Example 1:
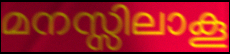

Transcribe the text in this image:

മനസ്സിലാകൂ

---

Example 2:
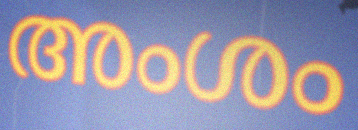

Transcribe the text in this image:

അംശം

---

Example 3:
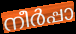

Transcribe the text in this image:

നീർപ്പാ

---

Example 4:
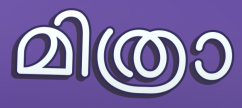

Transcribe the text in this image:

മിത്രാ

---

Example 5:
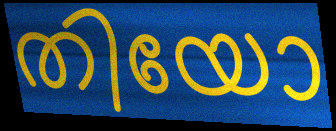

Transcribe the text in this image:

തിയോ